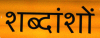
शब्दांशों